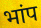
भांप